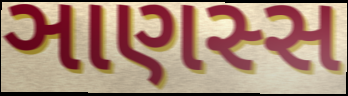
ઞાણસ્સ